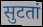
सुटतां